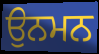
ਉਨਮਨ